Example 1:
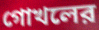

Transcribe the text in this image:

গোখলের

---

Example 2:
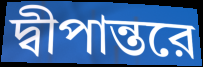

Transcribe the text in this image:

দ্বীপান্তরে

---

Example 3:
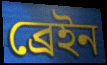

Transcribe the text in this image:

ব্রেইন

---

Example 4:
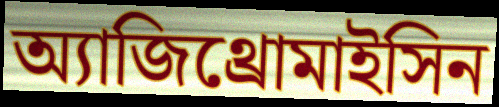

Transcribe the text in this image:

অ্যাজিথ্রোমাইসিন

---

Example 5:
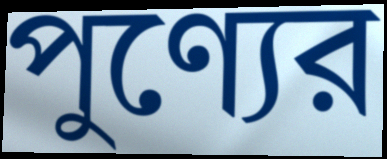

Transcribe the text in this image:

পুণ্যের